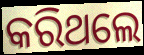
କରିଥଲେ